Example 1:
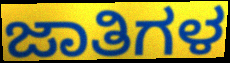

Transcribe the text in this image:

ಜಾತಿಗಳ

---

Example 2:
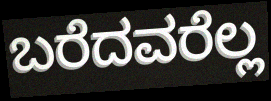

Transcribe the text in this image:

ಬರೆದವರೆಲ್ಲ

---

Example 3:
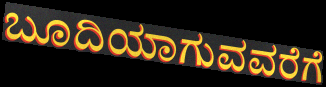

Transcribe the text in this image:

ಬೂದಿಯಾಗುವವರೆಗೆ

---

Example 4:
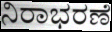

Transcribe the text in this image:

ನಿರಾಭರಣೆ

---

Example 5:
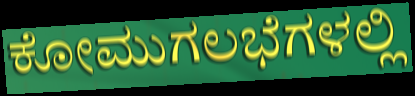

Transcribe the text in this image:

ಕೋಮುಗಲಭೆಗಳಲ್ಲಿ